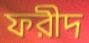
ফরীদ